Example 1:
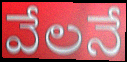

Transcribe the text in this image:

వేలనే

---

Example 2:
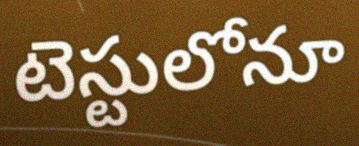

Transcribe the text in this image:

టెస్టులోనూ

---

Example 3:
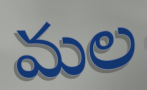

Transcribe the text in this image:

మల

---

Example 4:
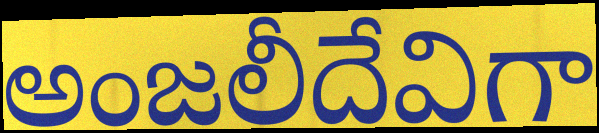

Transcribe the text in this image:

అంజలీదేవిగా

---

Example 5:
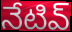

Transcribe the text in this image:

నేటివ్